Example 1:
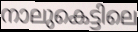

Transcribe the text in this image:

നാലുകെട്ടിലെ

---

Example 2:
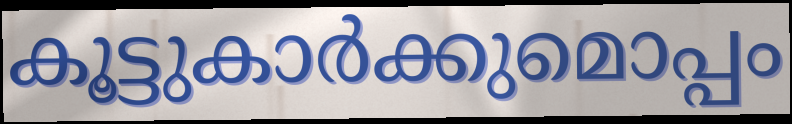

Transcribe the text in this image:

കൂട്ടുകാർക്കുമൊപ്പം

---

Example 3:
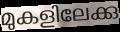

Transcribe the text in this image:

മുകളിലേക്കു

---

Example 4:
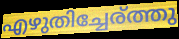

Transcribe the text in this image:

എഴുതിച്ചേര്ത്തു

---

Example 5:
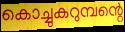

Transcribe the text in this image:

കൊച്ചുകറുമ്പന്റെ